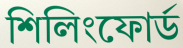
শিলিংফোর্ড